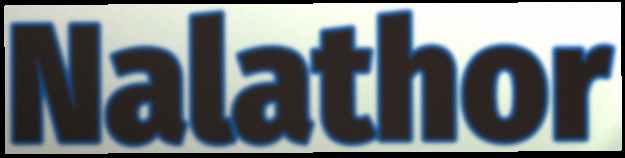
Nalathor